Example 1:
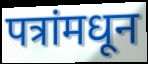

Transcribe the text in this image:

पत्रांमधून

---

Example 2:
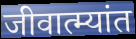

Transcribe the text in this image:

जीवात्म्यांत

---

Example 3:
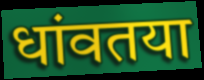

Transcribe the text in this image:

धांवतया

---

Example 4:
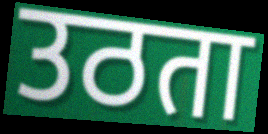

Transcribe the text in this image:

उठता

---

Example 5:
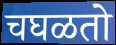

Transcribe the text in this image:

चघळतो